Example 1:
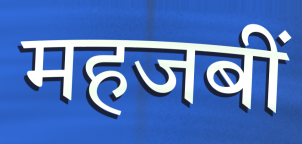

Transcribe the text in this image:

महजबीं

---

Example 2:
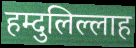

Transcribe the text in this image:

हम्दुलिल्लाह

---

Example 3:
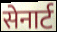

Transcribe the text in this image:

सेनार्ट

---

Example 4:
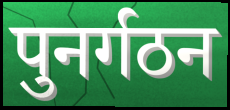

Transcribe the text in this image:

पुनर्गठन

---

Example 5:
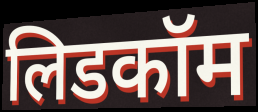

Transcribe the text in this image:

लिडकॉम